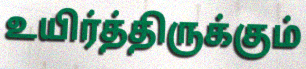
உயிர்த்திருக்கும்